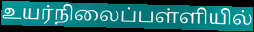
உயர்நிலைப்பள்ளியில்